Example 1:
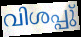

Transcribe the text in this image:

വിശപ്പു്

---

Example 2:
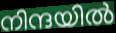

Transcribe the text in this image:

നിന്ദയിൽ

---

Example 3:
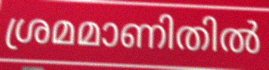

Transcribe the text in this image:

ശ്രമമാണിതിൽ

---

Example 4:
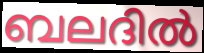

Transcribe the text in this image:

ബലദിൽ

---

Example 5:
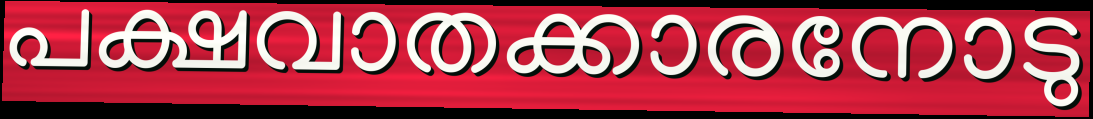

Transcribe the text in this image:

പക്ഷവാതക്കാരനോടു